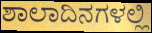
ಶಾಲಾದಿನಗಳಲ್ಲಿ